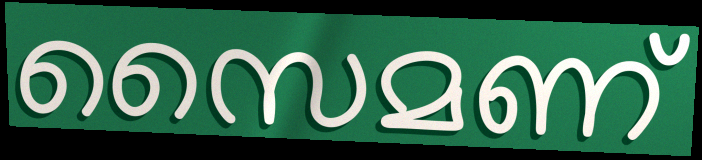
സൈമണ്